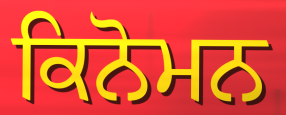
ਕਿਨੋਮਨ